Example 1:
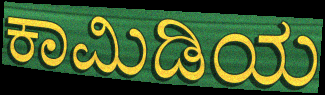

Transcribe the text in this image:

ಕಾಮಿಡಿಯ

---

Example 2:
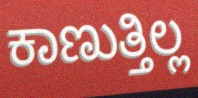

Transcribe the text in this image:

ಕಾಣುತ್ತಿಲ್ಲ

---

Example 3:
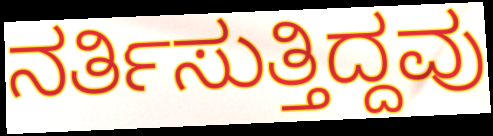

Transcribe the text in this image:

ನರ್ತಿಸುತ್ತಿದ್ದವು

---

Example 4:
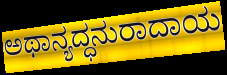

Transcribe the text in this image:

ಅಥಾನ್ಯದ್ಧನುರಾದಾಯ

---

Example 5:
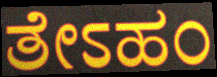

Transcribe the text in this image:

ತೇಽಹಂ